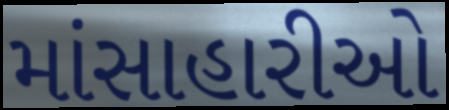
માંસાહારીઓ